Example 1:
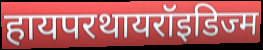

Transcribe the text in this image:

हायपरथायरॉइडिज्म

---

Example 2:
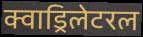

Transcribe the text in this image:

क्वाड्रिलेटरल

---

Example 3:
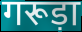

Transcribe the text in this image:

गरूड़ा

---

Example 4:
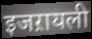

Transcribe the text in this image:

इजऱायली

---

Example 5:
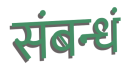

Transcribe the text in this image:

संबन्धं